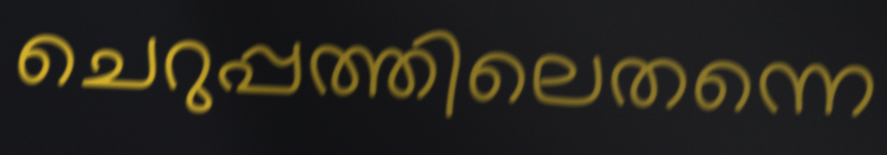
ചെറുപ്പത്തിലെതന്നെ